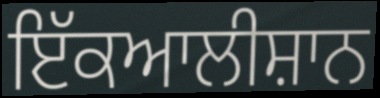
ਇੱਕਆਲੀਸ਼ਾਨ